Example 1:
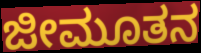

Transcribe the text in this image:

ಜೀಮೂತನ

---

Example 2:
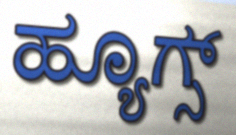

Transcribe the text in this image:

ಹ್ಯೂಗ್ಸ್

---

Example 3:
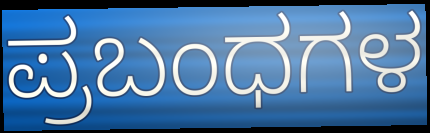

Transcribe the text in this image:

ಪ್ರಬಂಧಗಳ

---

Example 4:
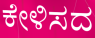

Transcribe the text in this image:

ಕೇಳಿಸದ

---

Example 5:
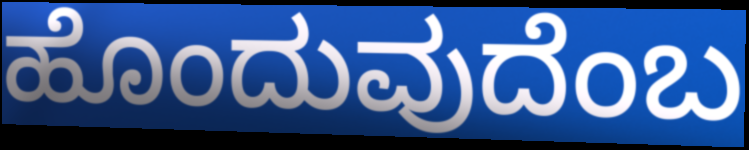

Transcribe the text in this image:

ಹೊಂದುವುದೆಂಬ